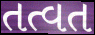
તત્વત